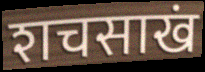
शचसाखं